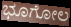
ಭೂಗೋಲ